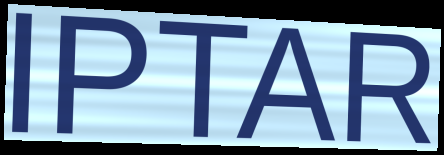
IPTAR